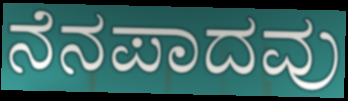
ನೆನಪಾದವು